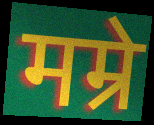
मम्रे